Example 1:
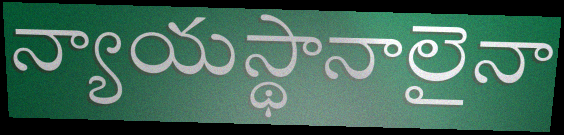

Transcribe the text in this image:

న్యాయస్థానాలైనా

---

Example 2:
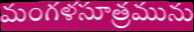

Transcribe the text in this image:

మంగళసూత్రమును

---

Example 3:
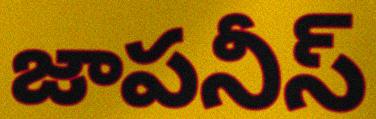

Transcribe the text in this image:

జాపనీస్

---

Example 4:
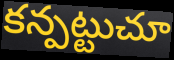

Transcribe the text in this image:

కన్పట్టుచూ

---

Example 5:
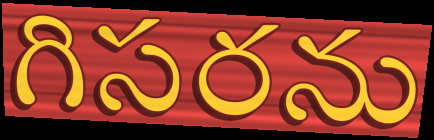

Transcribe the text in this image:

గిసరను